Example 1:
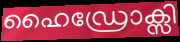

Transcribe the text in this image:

ഹൈഡ്രോക്സി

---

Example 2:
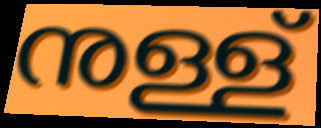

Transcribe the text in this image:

നുള്ള്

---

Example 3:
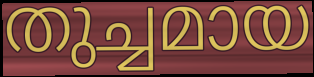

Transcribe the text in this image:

തുച്ചമായ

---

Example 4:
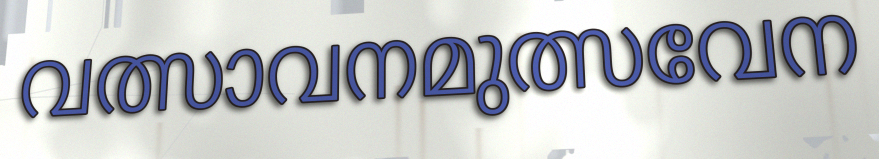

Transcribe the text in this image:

വത്സാവനമുത്സവേന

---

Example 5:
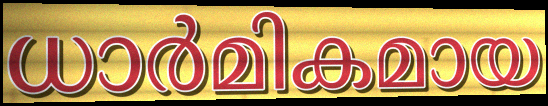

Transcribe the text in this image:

ധാർമികമായ